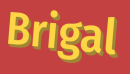
Brigal